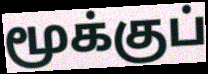
மூக்குப்